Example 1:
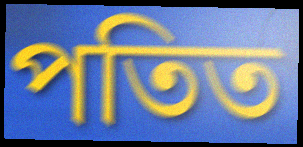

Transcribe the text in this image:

পতিত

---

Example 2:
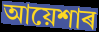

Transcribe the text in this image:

আয়েশাৰ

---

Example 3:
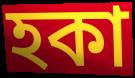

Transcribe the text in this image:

হকা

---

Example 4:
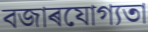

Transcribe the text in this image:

বজাৰযোগ্যতা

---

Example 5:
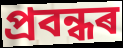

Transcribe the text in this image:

প্ৰবন্ধৰ